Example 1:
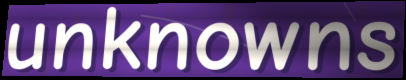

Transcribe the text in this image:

unknowns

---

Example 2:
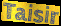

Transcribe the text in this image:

Taisir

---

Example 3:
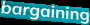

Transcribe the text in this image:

bargaining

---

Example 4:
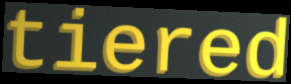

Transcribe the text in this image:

tiered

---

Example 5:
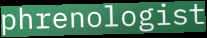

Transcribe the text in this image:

phrenologist